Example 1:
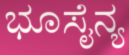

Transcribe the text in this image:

ಭೂಸೈನ್ಯ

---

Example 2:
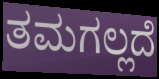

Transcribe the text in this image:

ತಮಗಲ್ಲದೆ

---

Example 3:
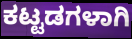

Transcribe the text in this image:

ಕಟ್ಟಡಗಳಾಗಿ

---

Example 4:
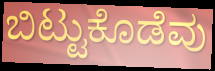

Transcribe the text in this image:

ಬಿಟ್ಟುಕೊಡೆವು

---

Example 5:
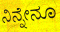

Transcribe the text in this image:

ನಿನ್ನೇನೂ